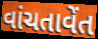
વાંચતાવેંત